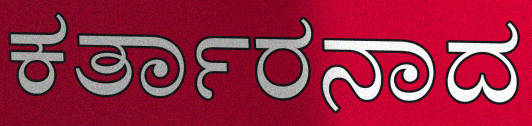
ಕರ್ತಾರನಾದ